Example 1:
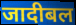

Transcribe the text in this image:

जादीबल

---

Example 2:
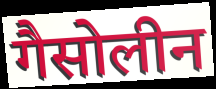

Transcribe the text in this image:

गैसोलीन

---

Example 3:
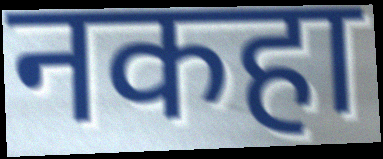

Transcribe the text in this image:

नकहा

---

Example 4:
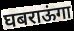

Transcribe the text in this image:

घबराऊंगा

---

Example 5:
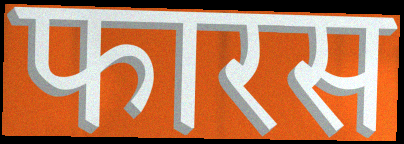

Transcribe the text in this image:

फारस